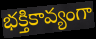
భక్తికావ్యంగా